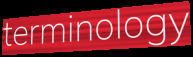
terminology